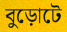
বুড়োটে